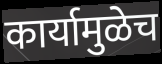
कार्यामुळेच